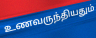
உணவருந்தியதும்